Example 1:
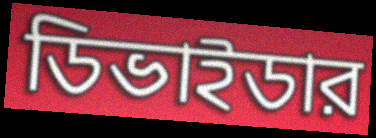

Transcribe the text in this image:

ডিভাইডার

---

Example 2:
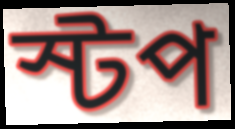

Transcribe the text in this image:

স্টপ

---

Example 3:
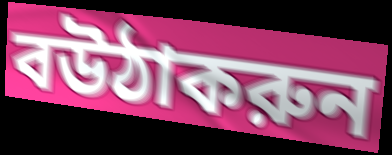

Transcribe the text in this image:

বউঠাকরুন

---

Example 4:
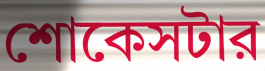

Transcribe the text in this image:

শোকেসটার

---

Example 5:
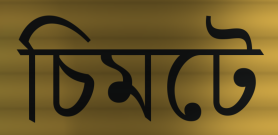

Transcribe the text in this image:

চিমটে